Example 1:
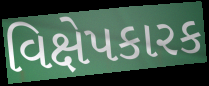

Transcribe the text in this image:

વિક્ષેપકારક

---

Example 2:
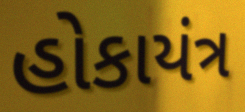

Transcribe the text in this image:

હોકાયંત્ર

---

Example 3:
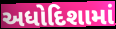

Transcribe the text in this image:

અધોદિશામાં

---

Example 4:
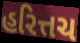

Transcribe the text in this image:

હરિત્તચ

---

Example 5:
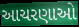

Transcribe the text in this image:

આચરણાઓ